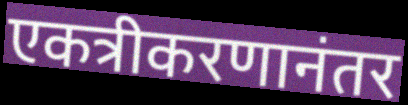
एकत्रीकरणानंतर